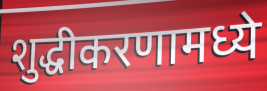
शुद्धीकरणामध्ये